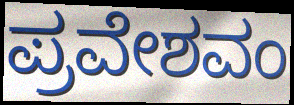
ಪ್ರವೇಶವಂ